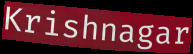
Krishnagar